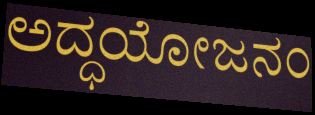
ಅದ್ಧಯೋಜನಂ